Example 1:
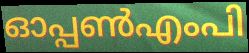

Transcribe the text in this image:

ഓപ്പൺഎംപി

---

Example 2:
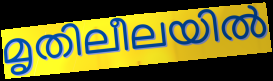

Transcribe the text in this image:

മൃതിലീലയിൽ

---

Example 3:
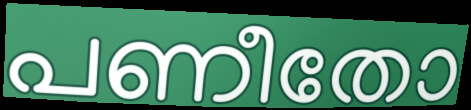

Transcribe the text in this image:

പണീതോ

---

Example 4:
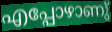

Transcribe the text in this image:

എപ്പോഴാണു്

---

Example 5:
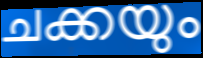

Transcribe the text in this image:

ചക്കയും